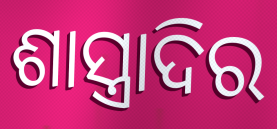
ଶାସ୍ତ୍ରାଦିର